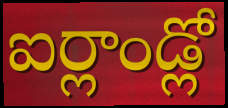
ఐర్లాండ్లో